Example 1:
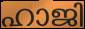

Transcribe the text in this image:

ഹാജി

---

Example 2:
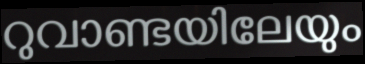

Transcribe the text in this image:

റുവാണ്ടയിലേയും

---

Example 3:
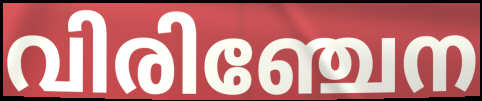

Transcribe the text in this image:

വിരിഞ്ചേന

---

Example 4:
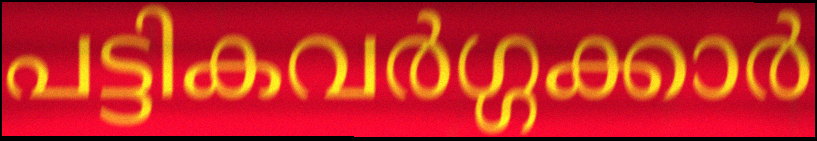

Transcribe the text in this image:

പട്ടികവർഗ്ഗക്കാർ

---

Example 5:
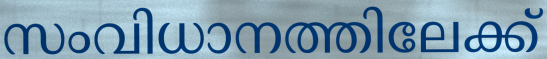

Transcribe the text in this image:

സംവിധാനത്തിലേക്ക്